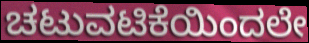
ಚಟುವಟಿಕೆಯಿಂದಲೇ